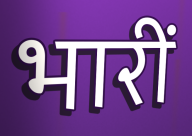
भारीं